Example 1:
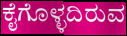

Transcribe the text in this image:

ಕೈಗೊಳ್ಳದಿರುವ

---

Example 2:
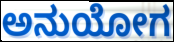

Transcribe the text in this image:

ಅನುಯೋಗ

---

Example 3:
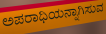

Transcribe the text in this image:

ಅಪರಾಧಿಯನ್ನಾಗಿಸುವ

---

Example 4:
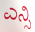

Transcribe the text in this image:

ಎನ್ಸಿ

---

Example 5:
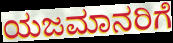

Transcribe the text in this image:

ಯಜಮಾನರಿಗೆ